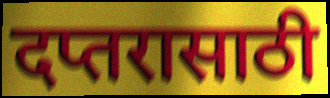
दप्तरासाठी